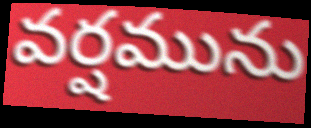
వర్షమును